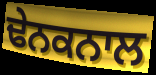
ਢੇਨਕਨਾਲ